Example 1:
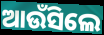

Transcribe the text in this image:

ଆଉଁସିଲେ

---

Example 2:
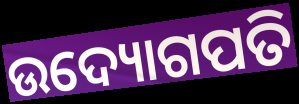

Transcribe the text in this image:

ଉଦ୍ୟୋଗପତି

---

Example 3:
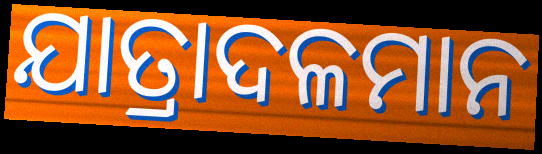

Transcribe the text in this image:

ଯାତ୍ରାଦଳମାନ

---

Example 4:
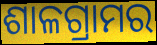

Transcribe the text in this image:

ଶାଳଗ୍ରାମର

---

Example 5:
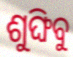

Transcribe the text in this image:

ଶୁଙ୍ଘିବୁ